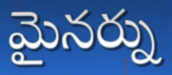
మైనర్ను